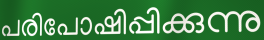
പരിപോഷിപ്പിക്കുന്നു